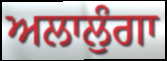
ਅਲਾਲੁੰਗਾ